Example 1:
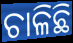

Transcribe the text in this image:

ଚାଳିଛି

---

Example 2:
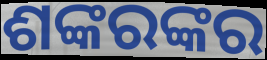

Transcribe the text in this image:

ଶଙ୍କରଙ୍କର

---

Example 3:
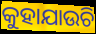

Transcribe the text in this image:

କୁହାଯାଉଚି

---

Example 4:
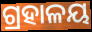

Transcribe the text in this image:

ଗ୍ରହାଳୟ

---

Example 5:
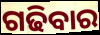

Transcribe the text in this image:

ଗଢିବାର